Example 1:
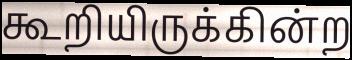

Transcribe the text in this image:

கூறியிருக்கின்ற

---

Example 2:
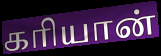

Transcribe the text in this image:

கரியான்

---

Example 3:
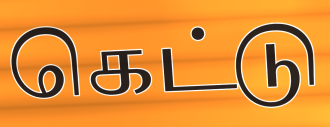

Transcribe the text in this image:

கெட்டு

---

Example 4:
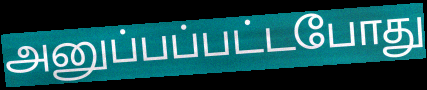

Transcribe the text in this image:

அனுப்பப்பட்டபோது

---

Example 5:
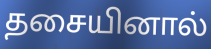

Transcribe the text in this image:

தசையினால்